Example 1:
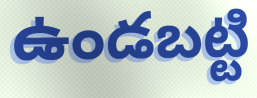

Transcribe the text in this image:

ఉండబట్టి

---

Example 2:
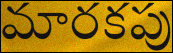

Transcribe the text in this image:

మారకపు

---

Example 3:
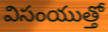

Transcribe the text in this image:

విసంయుత్తో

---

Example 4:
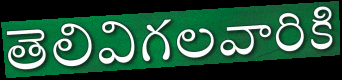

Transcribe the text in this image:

తెలివిగలవారికి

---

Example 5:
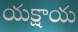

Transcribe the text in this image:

యక్షాయ